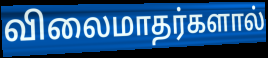
விலைமாதர்களால்